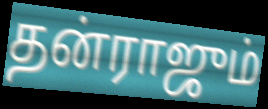
தன்ராஜும்